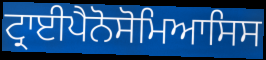
ਟ੍ਰਾਈਪੈਨੋਸੋਮਿਆਸਿਸ